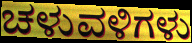
ಚಳುವಳಿಗಳು